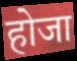
होजा